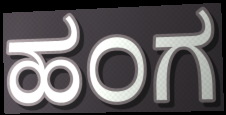
ಹಂಗ